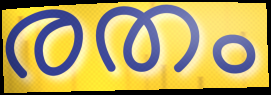
രതം